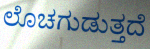
ಲೊಚಗುಡುತ್ತದೆ